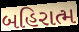
બહિરાત્મ